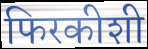
फिरकीशी